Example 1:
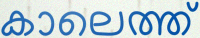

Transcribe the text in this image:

കാലെത്ത്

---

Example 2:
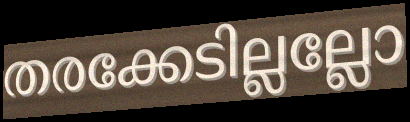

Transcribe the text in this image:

തരക്കേടില്ലല്ലോ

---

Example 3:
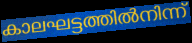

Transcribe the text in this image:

കാലഘട്ടത്തിൽനിന്ന്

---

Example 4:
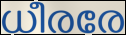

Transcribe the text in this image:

ധീരരേ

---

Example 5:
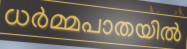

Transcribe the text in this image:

ധർമ്മപാതയിൽ